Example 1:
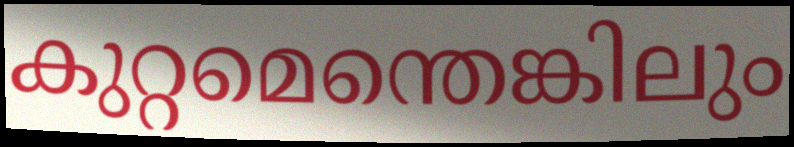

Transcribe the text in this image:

കുറ്റമെന്തെങ്കിലും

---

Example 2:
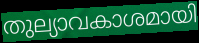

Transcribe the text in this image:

തുല്യാവകാശമായി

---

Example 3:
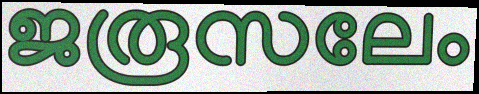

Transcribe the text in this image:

ജരൂസലേം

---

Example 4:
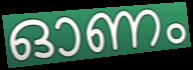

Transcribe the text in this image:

ഓണം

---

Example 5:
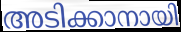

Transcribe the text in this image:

അടിക്കാനായി